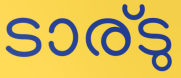
ടാര്ടു